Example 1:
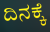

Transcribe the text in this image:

ದಿನಕ್ಕೆ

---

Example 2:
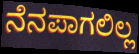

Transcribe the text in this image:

ನೆನಪಾಗಲಿಲ್ಲ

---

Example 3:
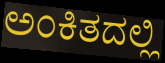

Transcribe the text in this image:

ಅಂಕಿತದಲ್ಲಿ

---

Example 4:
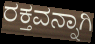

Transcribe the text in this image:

ರಕ್ತವನ್ನಾಗಿ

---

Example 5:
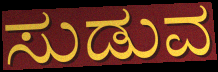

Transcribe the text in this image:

ಸುಡುವ